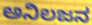
ಅನಿಲಜನ